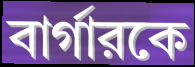
বার্গারকে